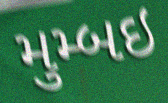
મુમ્બઇ